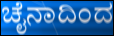
ಚೈನಾದಿಂದ